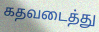
கதவடைத்து